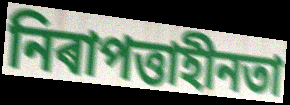
নিৰাপত্তাহীনতা